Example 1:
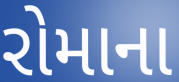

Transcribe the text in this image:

રોમાના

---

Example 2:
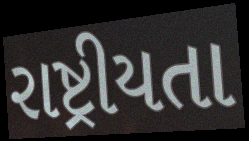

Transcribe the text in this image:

રાષ્ટ્રીયતા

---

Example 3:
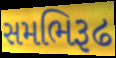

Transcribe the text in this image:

સમભિરૂઢ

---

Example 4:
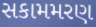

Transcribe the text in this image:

સકામમરણ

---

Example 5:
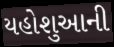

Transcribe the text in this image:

યહોશુઆની